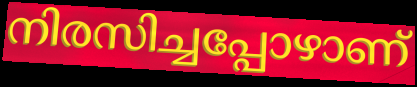
നിരസിച്ചപ്പോഴാണ്